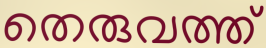
തെരുവത്ത്